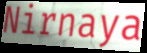
Nirnaya